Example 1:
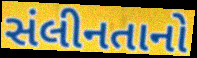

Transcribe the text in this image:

સંલીનતાનો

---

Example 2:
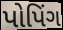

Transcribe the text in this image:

પોપિંગ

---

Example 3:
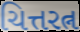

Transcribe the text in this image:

ચિત્તરત્ન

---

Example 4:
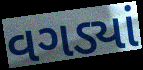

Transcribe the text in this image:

વગડ્યાં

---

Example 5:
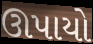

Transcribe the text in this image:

ઊપાયો